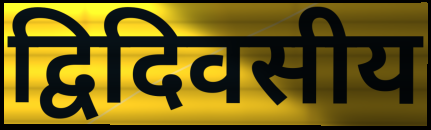
द्विदिवसीय